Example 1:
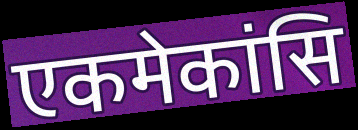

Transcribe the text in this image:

एकमेकांसि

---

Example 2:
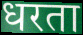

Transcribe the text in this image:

धरता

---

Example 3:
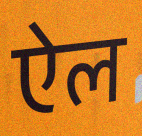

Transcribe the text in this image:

ऐल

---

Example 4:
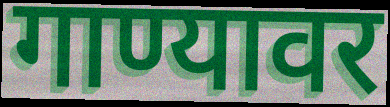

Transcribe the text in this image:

गाण्यावर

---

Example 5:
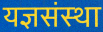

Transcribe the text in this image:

यज्ञसंस्था